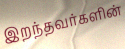
இறந்தவர்களின்